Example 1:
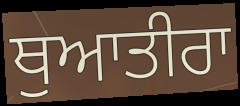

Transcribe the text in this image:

ਥੁਆਤੀਰਾ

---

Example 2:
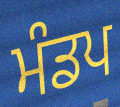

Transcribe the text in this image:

ਮੰਡਪ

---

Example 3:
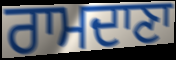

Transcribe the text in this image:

ਰਾਮਦਾਣਾ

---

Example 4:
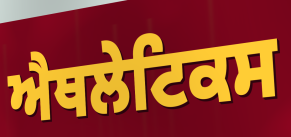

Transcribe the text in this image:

ਐਥਲੇਟਿਕਸ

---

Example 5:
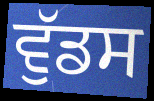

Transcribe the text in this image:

ਵੁੱਡਸ